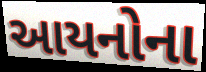
આયનોના